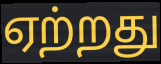
ஏற்றது